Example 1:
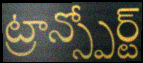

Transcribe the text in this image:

ట్రాన్స్పోర్ట్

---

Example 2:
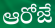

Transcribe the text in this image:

ఆరోజే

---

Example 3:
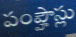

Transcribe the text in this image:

పంప్హౌస్లు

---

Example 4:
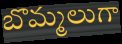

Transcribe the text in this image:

బొమ్మలుగా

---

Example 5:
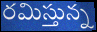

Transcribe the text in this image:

రమిస్తున్న